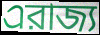
এরাজ্য